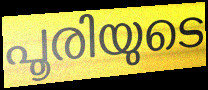
പൂരിയുടെ